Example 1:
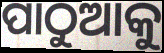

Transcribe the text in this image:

ପାଠୁଆକୁ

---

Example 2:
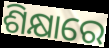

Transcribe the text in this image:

ଶିକ୍ଷାରେ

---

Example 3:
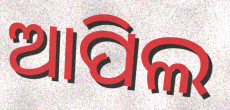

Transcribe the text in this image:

ଆପିଲ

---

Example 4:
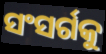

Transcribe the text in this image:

ସଂସର୍ଗକୁ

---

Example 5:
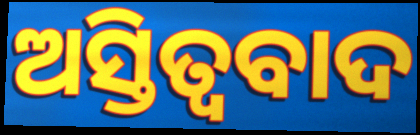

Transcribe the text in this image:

ଅସ୍ତିତ୍ବବାଦ